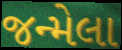
જન્મેલા